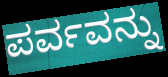
ಪರ್ವವನ್ನು